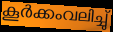
കൂർക്കംവലിച്ചു്